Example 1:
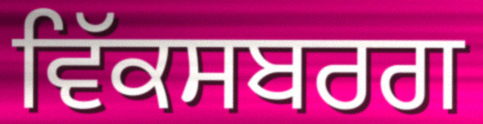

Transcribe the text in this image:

ਵਿੱਕਸਬਰਗ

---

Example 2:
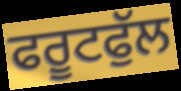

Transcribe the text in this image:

ਫਰੂਟਫੁੱਲ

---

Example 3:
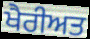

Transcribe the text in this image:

ਖੈਰੀਅਤ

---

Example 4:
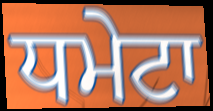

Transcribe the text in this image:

ਧਮੇਟਾ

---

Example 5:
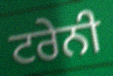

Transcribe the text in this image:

ਟਰੇਨੀ